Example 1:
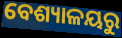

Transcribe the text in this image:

ବେଶ୍ୟାଳୟରୁ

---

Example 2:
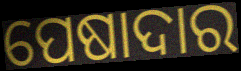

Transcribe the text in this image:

ପେଷାଦାର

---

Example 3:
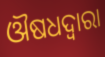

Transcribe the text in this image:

ଔଷଧଦ୍ବାରା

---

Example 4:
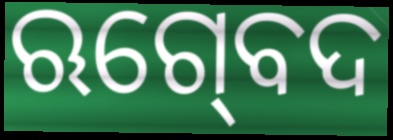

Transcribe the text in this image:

ଋଗ୍‍ବେଦ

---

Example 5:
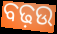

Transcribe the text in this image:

ବଢ଼ଉ